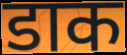
डाक